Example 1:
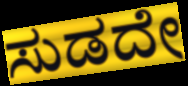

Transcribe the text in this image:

ಸುಡದೇ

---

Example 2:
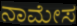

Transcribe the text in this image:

ನಾಮೇಸ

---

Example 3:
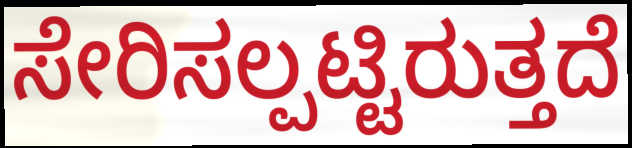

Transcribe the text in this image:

ಸೇರಿಸಲ್ಪಟ್ಟಿರುತ್ತದೆ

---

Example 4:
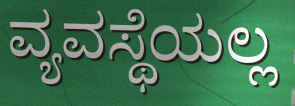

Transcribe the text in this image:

ವ್ಯವಸ್ಥೆಯಲ್ಲ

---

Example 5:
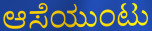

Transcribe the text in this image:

ಆಸೆಯುಂಟು